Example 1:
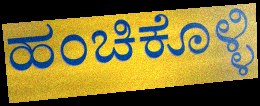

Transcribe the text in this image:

ಹಂಚಿಕೊಳ್ಳಿ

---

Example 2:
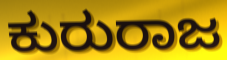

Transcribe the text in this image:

ಕುರುರಾಜ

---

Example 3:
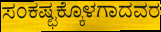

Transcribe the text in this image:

ಸಂಕಷ್ಟಕ್ಕೊಳಗಾದವರ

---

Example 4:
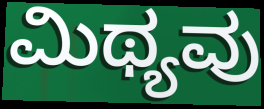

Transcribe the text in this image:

ಮಿಥ್ಯವು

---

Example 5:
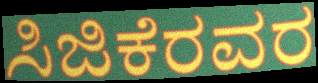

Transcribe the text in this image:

ಸಿಜಿಕೆರವರ